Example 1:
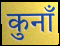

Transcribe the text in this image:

कुनाँ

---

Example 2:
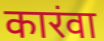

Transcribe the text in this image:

कारंवा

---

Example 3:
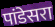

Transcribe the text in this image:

पांडेसरा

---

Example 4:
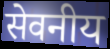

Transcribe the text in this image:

सेवनीय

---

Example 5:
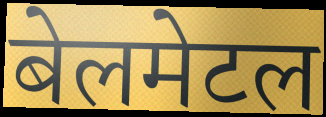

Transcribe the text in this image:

बेलमेटल